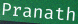
Pranath